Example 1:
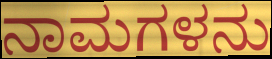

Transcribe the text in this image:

ನಾಮಗಳನು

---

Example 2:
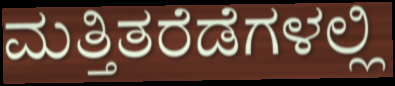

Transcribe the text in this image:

ಮತ್ತಿತರೆಡೆಗಳಲ್ಲಿ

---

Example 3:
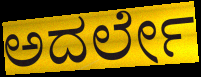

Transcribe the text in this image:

ಅದರ್ಲೇ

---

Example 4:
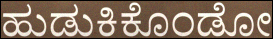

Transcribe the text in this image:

ಹುಡುಕಿಕೊಂಡೋ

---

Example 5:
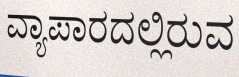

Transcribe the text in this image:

ವ್ಯಾಪಾರದಲ್ಲಿರುವ